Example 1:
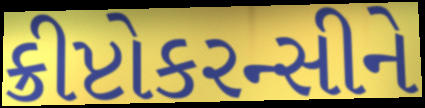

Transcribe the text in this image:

ક્રીપ્ટોકરન્સીને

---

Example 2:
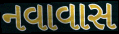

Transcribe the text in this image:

નવાવાસ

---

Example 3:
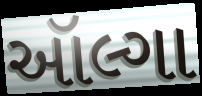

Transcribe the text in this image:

ઑલ્ગા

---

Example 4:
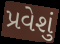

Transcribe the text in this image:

પ્રવેશું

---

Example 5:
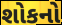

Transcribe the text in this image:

શોકનો